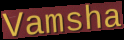
Vamsha